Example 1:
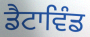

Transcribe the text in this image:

ਡੈਟਾਵਿੰਡ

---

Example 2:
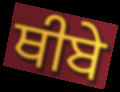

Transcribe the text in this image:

ਥੀਬੇ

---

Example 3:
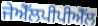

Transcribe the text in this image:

ਜੇਐੱਲਪੀਪੀਐੱਲ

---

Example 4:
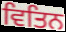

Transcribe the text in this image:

ਵਿਤਿਨ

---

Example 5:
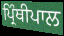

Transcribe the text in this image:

ਪ੍ਰਿੰਥੀਪਾਲ